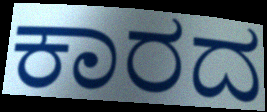
ಕಾರದ